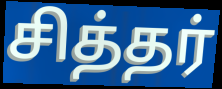
சித்தர்